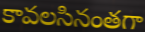
కావలసినంతగా